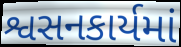
શ્વસનકાર્યમાં